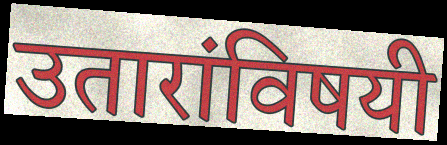
उतारांविषयी